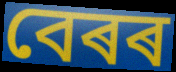
বেৰৰ